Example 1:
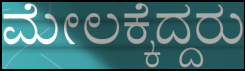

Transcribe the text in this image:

ಮೇಲಕ್ಕೆದ್ದರು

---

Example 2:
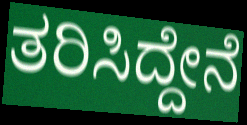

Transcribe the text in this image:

ತರಿಸಿದ್ದೇನೆ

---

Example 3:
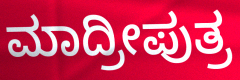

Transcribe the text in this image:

ಮಾದ್ರೀಪುತ್ರ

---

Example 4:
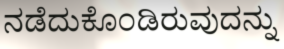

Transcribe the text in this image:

ನಡೆದುಕೊಂಡಿರುವುದನ್ನು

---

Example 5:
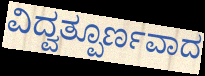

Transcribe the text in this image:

ವಿದ್ವತ್ಪೂರ್ಣವಾದ